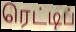
ரெட்டிப்